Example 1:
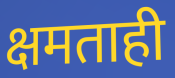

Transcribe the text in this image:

क्षमताही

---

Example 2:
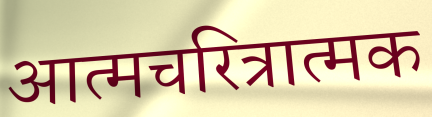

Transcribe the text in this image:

आत्मचरित्रात्मक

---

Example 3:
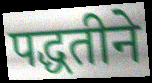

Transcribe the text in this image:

पद्धतीने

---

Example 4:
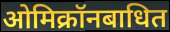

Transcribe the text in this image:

ओमिक्रॉनबाधित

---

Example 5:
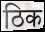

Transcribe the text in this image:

ठिक